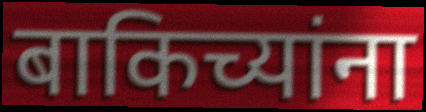
बाकिच्यांना